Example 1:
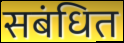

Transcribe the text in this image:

सबंधित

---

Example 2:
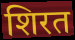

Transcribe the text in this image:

शिरत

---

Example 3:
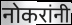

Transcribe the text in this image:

नोकरांनी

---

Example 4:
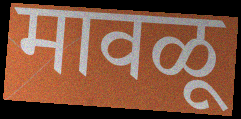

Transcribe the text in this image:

मावळू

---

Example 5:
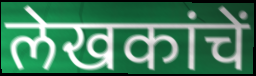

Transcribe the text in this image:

लेखकांचें